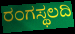
ರಂಗಸ್ಥಲದಿ